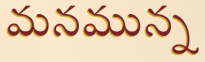
మనమున్న